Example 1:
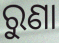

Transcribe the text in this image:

ରୁଣା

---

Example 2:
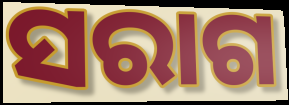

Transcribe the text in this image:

ସରାଗ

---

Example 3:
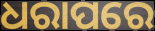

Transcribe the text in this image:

ଧରାପରେ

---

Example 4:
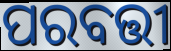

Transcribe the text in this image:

ପରବତ୍ତୀ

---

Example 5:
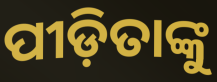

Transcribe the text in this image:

ପୀଡ଼ିତାଙ୍କୁ